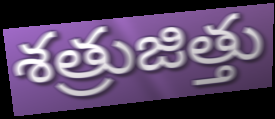
శత్రుజిత్తు